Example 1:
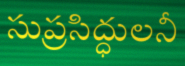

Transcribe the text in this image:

సుప్రసిద్ధులనీ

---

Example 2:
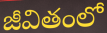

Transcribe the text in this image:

జీవితంలో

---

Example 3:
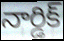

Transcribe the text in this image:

నార్డిక్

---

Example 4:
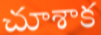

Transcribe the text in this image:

చూశాక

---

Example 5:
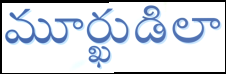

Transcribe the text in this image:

మూర్ఖుడిలా